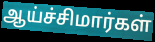
ஆய்ச்சிமார்கள்